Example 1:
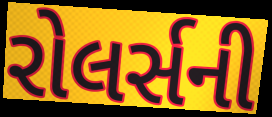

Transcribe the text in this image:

રોલર્સની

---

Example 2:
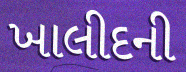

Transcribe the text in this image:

ખાલીદની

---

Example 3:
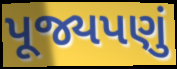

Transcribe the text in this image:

પૂજ્યપણું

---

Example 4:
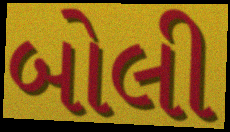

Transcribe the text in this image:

બોલી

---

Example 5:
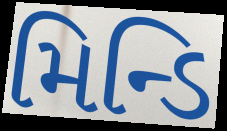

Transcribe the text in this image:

મિન્ડિ